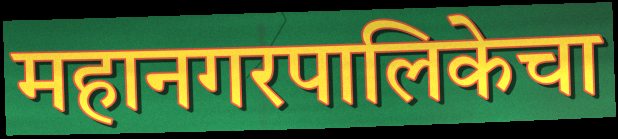
महानगरपालिकेचा